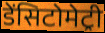
डेंसिटोमेट्री